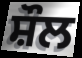
ਸ਼ੌਲ